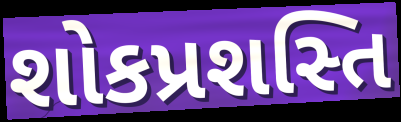
શોકપ્રશસ્તિ